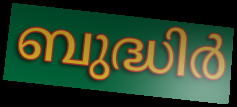
ബുദ്ധിർ